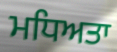
ਮਧਿਅਤਾ